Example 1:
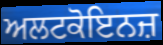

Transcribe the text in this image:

ਅਲਟਕੋਇਨਜ਼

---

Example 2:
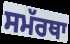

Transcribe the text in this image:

ਸਮੱਰਥਾ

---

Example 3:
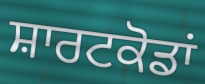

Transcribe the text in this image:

ਸ਼ਾਰਟਕੋਡਾਂ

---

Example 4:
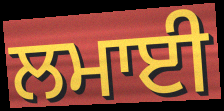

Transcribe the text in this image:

ਲਮਾਈ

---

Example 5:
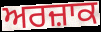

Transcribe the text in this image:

ਅਰਜ਼ਾਕ